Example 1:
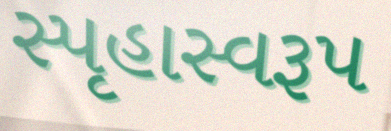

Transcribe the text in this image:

સ્પૃહાસ્વરૂપ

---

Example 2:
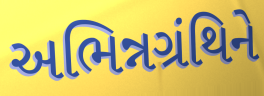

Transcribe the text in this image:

અભિન્નગ્રંથિને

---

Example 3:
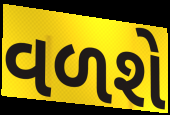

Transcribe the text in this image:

વળશે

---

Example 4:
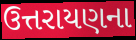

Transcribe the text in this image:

ઉત્તરાયણના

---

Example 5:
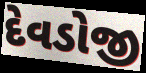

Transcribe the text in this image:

દેવડોજી